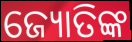
ଜ୍ୟୋତିଙ୍କ